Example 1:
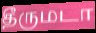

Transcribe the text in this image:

தீருமடா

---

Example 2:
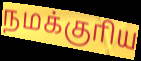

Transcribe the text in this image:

நமக்குரிய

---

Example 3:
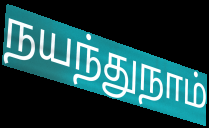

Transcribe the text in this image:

நயந்துநாம்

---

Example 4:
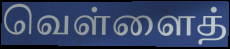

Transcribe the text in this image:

வெள்ளைத்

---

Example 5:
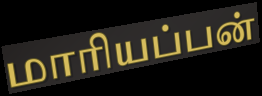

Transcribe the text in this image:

மாரியப்பன்